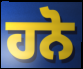
ਹਨੋ